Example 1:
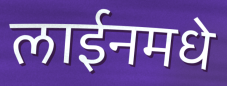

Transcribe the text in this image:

लाईनमधे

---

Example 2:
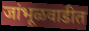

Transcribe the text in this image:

जांभूळवाडीत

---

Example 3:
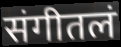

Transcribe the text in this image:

संगीतलं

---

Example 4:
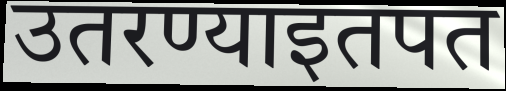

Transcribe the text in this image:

उतरण्याइतपत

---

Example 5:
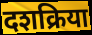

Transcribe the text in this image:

दशक्रिया